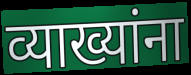
व्याख्यांना